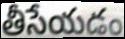
తీసేయడం